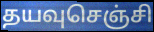
தயவுசெஞ்சி